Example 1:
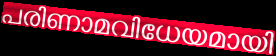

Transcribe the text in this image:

പരിണാമവിധേയമായി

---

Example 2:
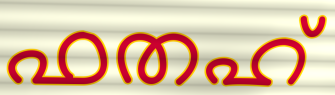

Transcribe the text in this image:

ഫതഹ്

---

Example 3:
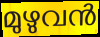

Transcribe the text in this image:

മുഴുവൻ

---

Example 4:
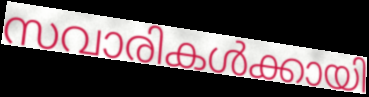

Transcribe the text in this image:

സവാരികൾക്കായി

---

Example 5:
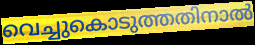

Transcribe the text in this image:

വെച്ചുകൊടുത്തതിനാൽ